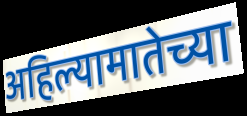
अहिल्यामातेच्या